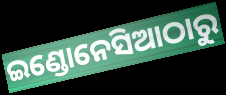
ଇଣ୍ଡୋନେସିଆଠାରୁ